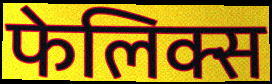
फेलिक्स